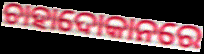
ଚାହାଦୋକାନରେ